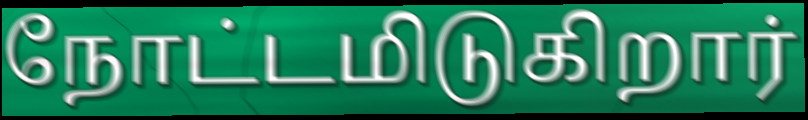
நோட்டமிடுகிறார்